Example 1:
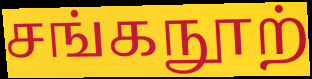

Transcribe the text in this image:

சங்கநூற்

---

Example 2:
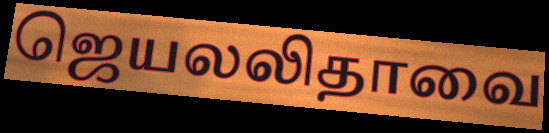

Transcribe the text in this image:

ஜெயலலிதாவை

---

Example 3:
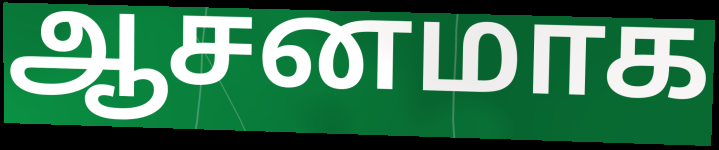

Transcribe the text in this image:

ஆசனமாக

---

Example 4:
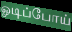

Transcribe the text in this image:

ஓடிப்போய்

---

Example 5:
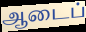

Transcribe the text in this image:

ஆடைப்